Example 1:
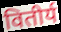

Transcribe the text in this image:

वितीर्य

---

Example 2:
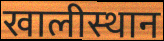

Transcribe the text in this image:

खालीस्थान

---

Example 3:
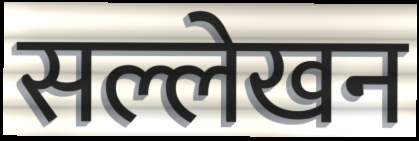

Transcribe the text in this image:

सल्लेखन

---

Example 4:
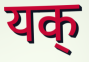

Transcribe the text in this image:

यक्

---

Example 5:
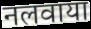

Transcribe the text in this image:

नलवाया